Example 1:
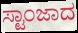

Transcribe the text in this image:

ಸ್ಟಾಂಜಾದ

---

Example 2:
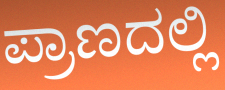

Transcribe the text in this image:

ಪ್ರಾಣದಲ್ಲಿ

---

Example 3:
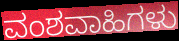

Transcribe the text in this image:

ವಂಶವಾಹಿಗಳು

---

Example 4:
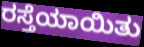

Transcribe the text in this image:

ರಸ್ತೆಯಾಯಿತು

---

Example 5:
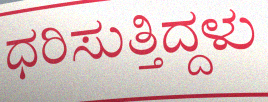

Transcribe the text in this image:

ಧರಿಸುತ್ತಿದ್ದಳು